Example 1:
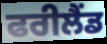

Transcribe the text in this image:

ਫਰੀਲੈਂਡ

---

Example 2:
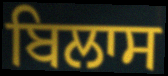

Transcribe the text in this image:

ਬਿਲਾਸ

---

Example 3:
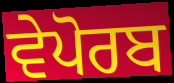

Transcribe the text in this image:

ਵੇਪੋਰਬ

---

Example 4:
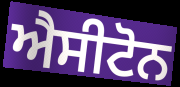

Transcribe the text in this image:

ਐਸੀਟੋਨ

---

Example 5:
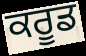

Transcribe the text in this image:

ਕਰੂਡ